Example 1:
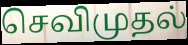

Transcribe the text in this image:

செவிமுதல்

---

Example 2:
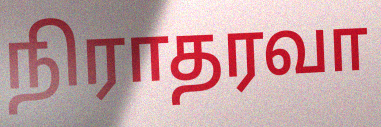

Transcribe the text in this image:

நிராதரவா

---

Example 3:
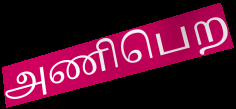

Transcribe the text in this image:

அணிபெற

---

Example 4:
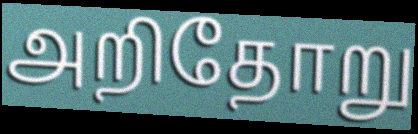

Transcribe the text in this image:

அறிதோறு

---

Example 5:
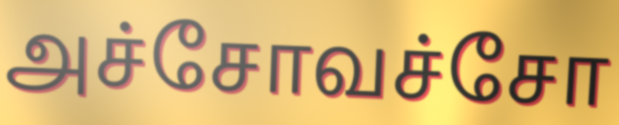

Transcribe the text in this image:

அச்சோவச்சோ